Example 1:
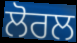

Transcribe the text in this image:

ਲੋਰਲ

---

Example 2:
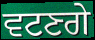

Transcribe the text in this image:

ਵਟਣਗੇ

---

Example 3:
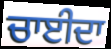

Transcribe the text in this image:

ਚਾਈਦਾ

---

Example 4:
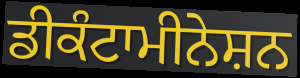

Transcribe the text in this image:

ਡੀਕੰਟਾਮੀਨੇਸ਼ਨ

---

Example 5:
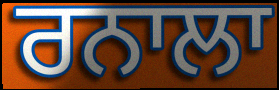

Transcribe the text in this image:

ਰਨਾਲਾ